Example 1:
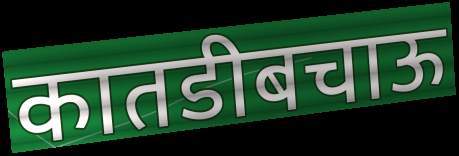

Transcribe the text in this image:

कातडीबचाऊ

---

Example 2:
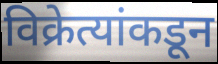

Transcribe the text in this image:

विक्रेत्यांकडून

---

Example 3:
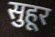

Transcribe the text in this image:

सुहूर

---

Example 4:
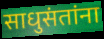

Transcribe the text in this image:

साधुसंतांना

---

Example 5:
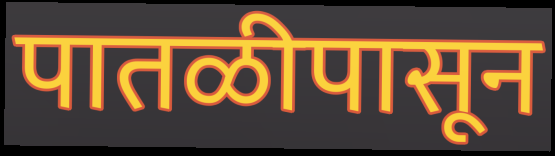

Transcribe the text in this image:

पातळीपासून